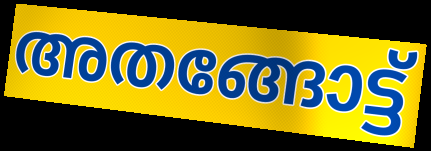
അതങ്ങോട്ട്